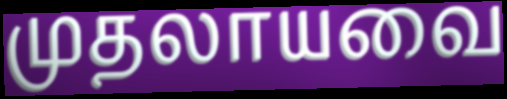
முதலாயவை